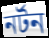
নৰ্টন